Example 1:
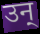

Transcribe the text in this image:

उन्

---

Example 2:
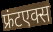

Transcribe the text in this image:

फ्रंटएक्स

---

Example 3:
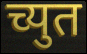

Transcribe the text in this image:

च्‍युत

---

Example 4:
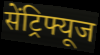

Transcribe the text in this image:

सेंट्रिफ्यूज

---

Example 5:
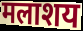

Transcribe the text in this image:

मलाशय